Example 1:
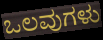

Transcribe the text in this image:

ಒಲವುಗಳು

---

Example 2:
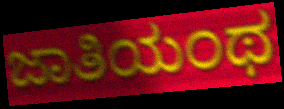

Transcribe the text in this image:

ಜಾತಿಯಂಥ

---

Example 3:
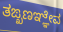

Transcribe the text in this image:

ತಙ್ಖಣಞ್ಞೇವ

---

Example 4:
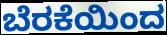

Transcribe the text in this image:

ಬೆರಕೆಯಿಂದ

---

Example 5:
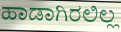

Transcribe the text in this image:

ಹಾಡಾಗಿರಲಿಲ್ಲ